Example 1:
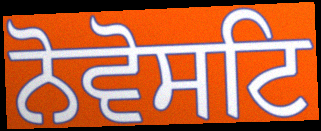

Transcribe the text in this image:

ਨੋਵੋਸਟਿ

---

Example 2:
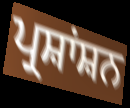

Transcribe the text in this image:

ਪ੍ਰਸ਼ਾਂਸ਼ਨ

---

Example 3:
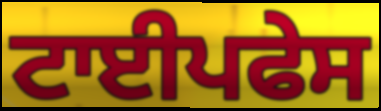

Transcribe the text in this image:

ਟਾਈਪਫੇਸ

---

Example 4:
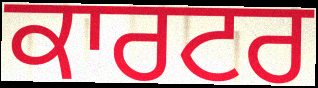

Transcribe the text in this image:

ਕਾਰਟਰ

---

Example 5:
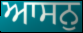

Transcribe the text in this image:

ਆਸਨੁ